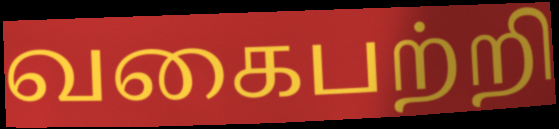
வகைபற்றி